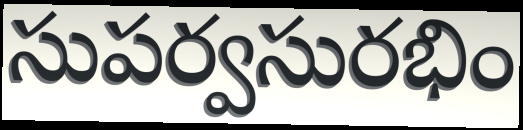
సుపర్వసురభిం